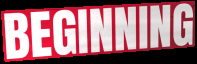
BEGINNING